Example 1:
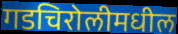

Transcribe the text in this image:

गडचिरोलीमधील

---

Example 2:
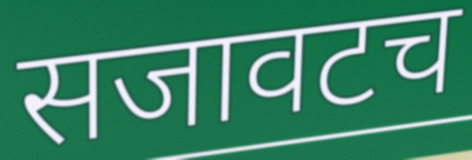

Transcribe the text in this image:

सजावटच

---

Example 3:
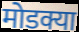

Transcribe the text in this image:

मोडक्या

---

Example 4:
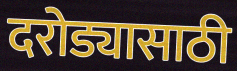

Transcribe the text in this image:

दरोड्यासाठी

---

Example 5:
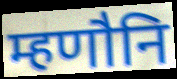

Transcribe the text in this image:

म्हणौनि